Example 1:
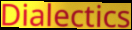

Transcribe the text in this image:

Dialectics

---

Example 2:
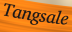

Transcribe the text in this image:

Tangsale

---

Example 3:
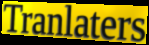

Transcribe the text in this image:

Tranlaters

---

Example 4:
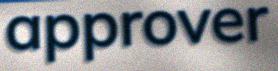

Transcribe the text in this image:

approver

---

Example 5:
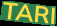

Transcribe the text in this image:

TARI